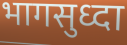
भागसुध्दा